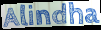
Alindha